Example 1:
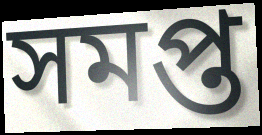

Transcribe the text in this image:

সমপ্ত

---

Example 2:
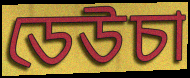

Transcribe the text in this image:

ডেউচা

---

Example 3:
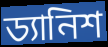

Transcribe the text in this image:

ড্যানিশ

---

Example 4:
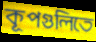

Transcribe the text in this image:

কূপগুলিতে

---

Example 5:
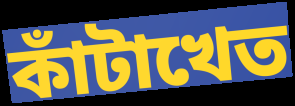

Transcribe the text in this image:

কাঁটাখেত